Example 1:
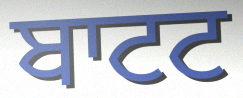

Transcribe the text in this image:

ਬਾਟਟ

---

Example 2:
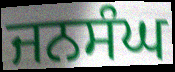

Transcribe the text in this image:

ਜਨਸੰਘ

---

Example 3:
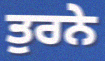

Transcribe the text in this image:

ਤੁਰਨੇ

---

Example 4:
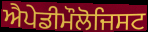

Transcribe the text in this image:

ਐਪੇਡੀਮੌਲੋਜਿਸਟ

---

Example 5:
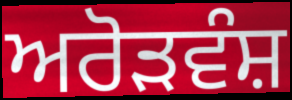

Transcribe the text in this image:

ਅਰੋੜਵੰਸ਼